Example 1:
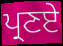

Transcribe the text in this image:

ਪ੍ਰਣਏ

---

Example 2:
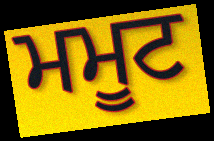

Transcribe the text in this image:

ਮਮੂਟ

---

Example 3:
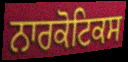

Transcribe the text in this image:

ਨਾਰਕੋਟਿਕਸ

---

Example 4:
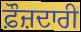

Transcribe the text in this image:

ਫ਼ੌਜ਼ਦਾਰੀ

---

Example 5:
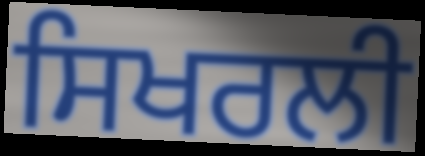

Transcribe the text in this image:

ਸਿਖਰਲੀ